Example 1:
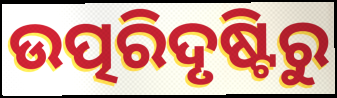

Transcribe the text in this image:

ଉତ୍ପରିଦୃଷ୍ଟିରୁ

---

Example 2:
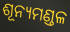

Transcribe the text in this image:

ଶୂନ୍ୟମଣ୍ଡଳ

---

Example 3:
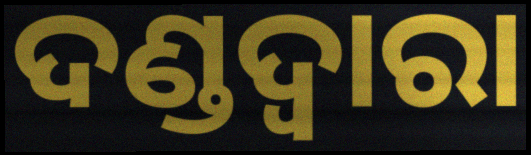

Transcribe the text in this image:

ଦଣ୍ଡଦ୍ବାରା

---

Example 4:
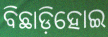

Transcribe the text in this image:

ବିଛାଡ଼ିହୋଇ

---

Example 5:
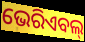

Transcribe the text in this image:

ଭେରିଏବଲ୍